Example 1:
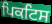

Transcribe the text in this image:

ਪਿਕਟਿਸ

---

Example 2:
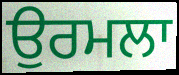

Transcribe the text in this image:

ਉਰਮਲਾ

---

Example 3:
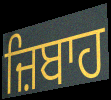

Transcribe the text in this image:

ਜ਼ਿਬਾਹ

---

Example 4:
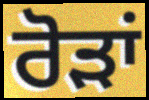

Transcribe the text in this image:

ਰੋੜਾਂ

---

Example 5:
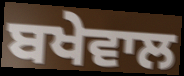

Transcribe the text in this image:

ਬਖੇਵਾਲ